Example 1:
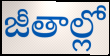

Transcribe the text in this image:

జీతాల్లో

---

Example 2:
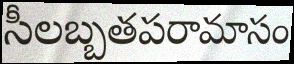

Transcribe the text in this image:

సీలబ్బతపరామాసం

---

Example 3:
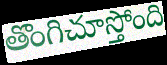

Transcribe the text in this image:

తొంగిచూస్తోంది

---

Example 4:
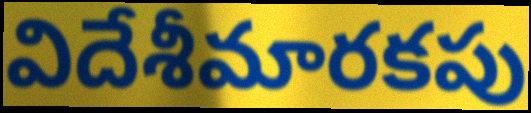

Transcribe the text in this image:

విదేశీమారకపు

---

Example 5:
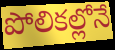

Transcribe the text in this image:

పోలికల్లోనే